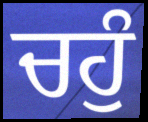
ਚਹੁੰ